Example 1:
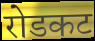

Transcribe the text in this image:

रोडकट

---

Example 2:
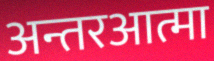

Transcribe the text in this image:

अन्तरआत्मा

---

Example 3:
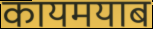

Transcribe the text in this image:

कायमयाब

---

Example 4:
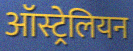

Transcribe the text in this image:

ऑस्ट्रेलियन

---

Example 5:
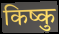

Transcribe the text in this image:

किष्कु